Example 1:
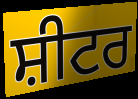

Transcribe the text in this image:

ਸ਼ੀਟਰ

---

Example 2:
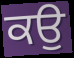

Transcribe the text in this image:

ਕਉ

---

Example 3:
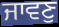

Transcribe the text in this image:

ਜਾਵਣੁ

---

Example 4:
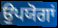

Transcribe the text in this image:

ਉਪਯੋਗਾਂ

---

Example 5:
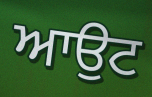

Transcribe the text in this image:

ਆਉਟ